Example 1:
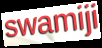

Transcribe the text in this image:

swamiji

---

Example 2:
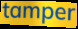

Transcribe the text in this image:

tamper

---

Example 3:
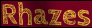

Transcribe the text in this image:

Rhazes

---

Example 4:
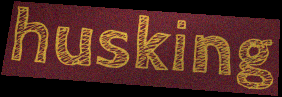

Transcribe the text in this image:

husking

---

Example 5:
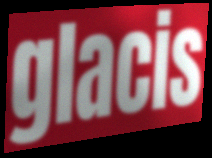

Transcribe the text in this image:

glacis